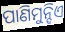
ପାଣିମୁନ୍ଦିଏ